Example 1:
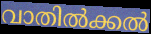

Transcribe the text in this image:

വാതിൽക്കൽ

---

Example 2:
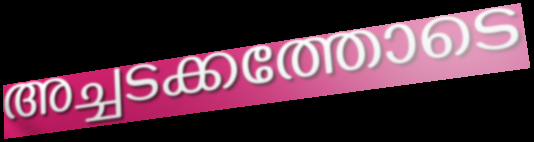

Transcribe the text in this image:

അച്ചടക്കത്തോടെ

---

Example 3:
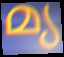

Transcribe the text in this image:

മ്യ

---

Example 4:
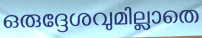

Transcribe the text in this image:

ഒരുദ്ദേശവുമില്ലാതെ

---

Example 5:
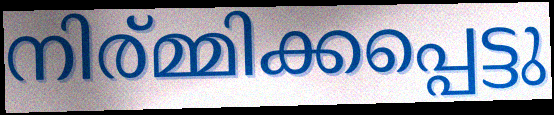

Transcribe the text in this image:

നിര്മ്മിക്കപ്പെട്ടു